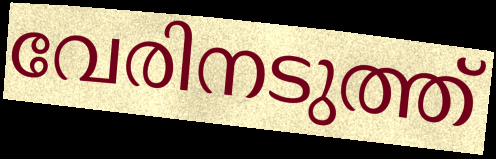
വേരിനടുത്ത്